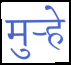
मुऱ्हे